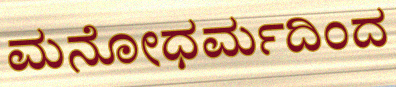
ಮನೋಧರ್ಮದಿಂದ